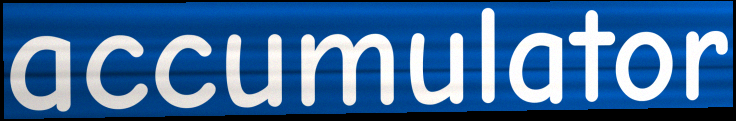
accumulator